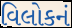
વિલોકનં